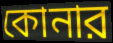
কোনার